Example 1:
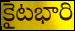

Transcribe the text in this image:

కైటభారి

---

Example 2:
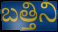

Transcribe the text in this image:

బత్తిని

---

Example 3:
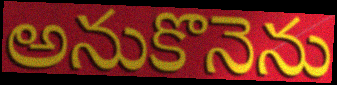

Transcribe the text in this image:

అనుకొనెను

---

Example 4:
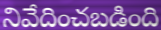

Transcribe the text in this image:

నివేదించబడింది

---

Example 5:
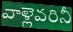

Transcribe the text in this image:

వాళ్లెవరినీ